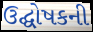
ઉદ્ઘોષકની